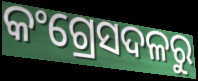
କଂଗ୍ରେସଦଳରୁ